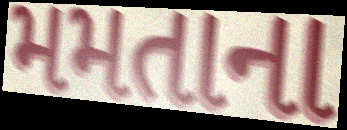
મમતાના